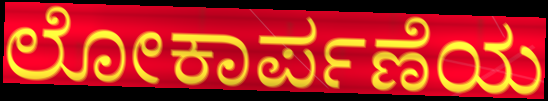
ಲೋಕಾರ್ಪಣೆಯ